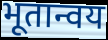
भूतान्वय